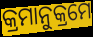
କ୍ରମାନୁକ୍ରମେ